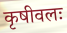
कृषीवलः